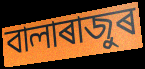
বালাৰাজুৰ